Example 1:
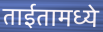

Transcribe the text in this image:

ताईतामध्ये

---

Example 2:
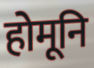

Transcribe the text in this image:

होमूनि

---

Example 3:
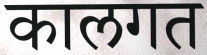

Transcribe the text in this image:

कालगत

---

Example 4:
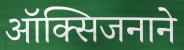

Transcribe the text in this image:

ऑक्सिजनाने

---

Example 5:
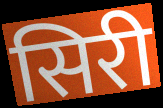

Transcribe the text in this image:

सिरी